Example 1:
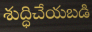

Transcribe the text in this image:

శుద్ధిచేయబడి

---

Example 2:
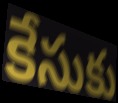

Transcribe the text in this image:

కేసుకు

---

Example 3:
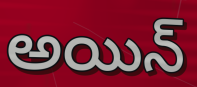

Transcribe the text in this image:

అయిన్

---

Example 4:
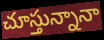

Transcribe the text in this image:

చూస్తున్నానా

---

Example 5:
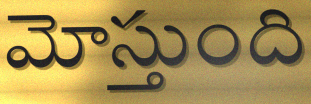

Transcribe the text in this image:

మోస్తుంది